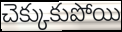
చెక్కుకుపోయి